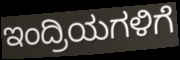
ಇಂದ್ರಿಯಗಳಿಗೆ